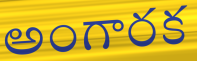
అంగారక